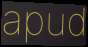
apud